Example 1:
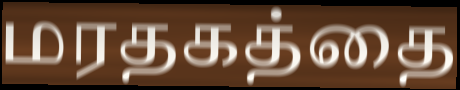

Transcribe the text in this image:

மரதகத்தை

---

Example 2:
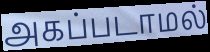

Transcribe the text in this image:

அகப்படாமல்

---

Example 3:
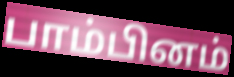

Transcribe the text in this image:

பாம்பினம்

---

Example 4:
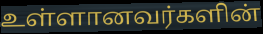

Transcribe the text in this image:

உள்ளானவர்களின்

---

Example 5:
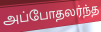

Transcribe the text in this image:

அப்போதலர்ந்த